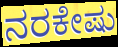
ನರಕೇಷು